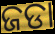
ଜଡା